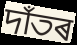
দাঁতৰ